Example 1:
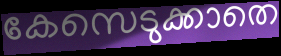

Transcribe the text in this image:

കേസെടുക്കാതെ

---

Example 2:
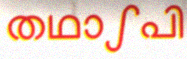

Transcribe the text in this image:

തഥാഽപി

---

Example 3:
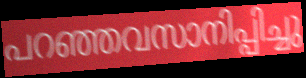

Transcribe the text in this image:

പറഞ്ഞവസാനിപ്പിച്ചു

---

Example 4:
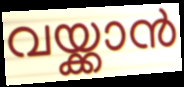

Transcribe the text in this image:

വയ്ക്കാൻ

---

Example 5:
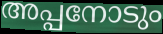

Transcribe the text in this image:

അപ്പനോടും